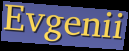
Evgenii